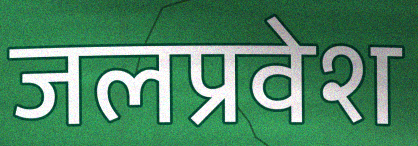
जलप्रवेश